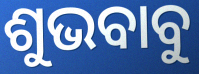
ଶୁଭବାବୁ